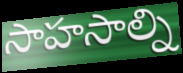
సాహసాల్ని